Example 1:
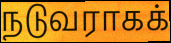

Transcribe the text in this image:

நடுவராகக்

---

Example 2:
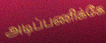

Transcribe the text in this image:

அடிப்பணிக்கே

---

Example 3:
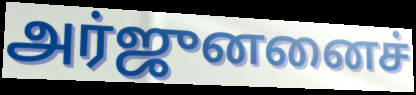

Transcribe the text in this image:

அர்ஜுனனைச்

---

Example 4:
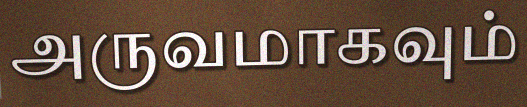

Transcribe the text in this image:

அருவமாகவும்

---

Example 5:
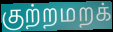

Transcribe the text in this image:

குற்றமறக்